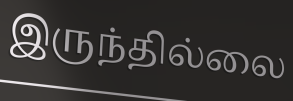
இருந்தில்லை